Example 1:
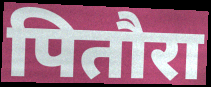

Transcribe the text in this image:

पितौरा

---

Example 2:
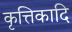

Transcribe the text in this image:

कृत्तिकादि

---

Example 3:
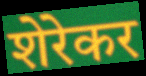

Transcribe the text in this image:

शेरेकर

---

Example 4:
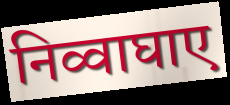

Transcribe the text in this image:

निव्वाघाए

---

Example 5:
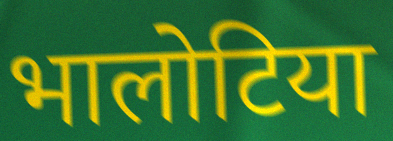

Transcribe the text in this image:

भालोटिया